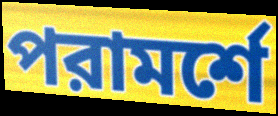
পরামর্শে